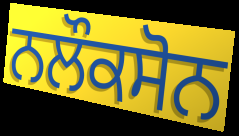
ਨਲੌਕਸੋਨ